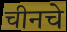
चीनचे